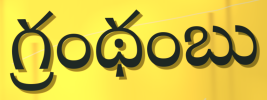
గ్రంథంబు